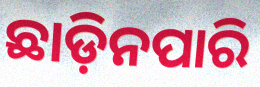
ଛାଡ଼ିନପାରି